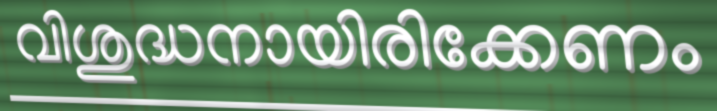
വിശുദ്ധനായിരിക്കേണം